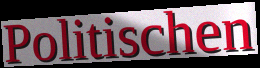
Politischen